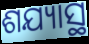
ଶଯ୍ୟାସ୍ଥ